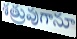
శత్రువుగానూ